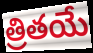
త్రితయే